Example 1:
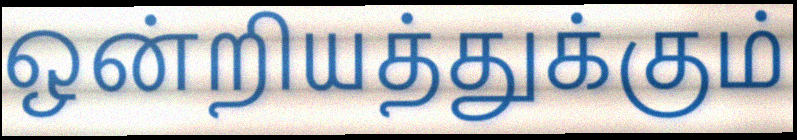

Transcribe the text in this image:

ஒன்றியத்துக்கும்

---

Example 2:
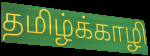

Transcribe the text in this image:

தமிழ்க்காழி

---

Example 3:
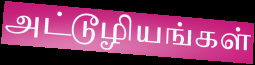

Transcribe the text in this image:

அட்டூழியங்கள்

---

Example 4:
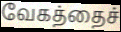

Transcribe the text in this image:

வேகத்தைச்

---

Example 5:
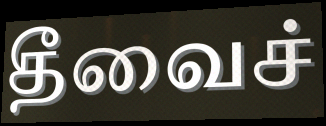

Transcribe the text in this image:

தீவைச்